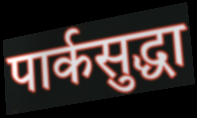
पार्कसुद्धा